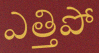
ఎత్తిపో